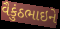
વૈકુંઠભાઇને